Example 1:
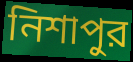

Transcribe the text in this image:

নিশাপুর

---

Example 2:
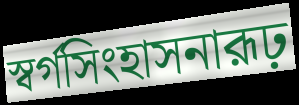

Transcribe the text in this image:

স্বর্গসিংহাসনারূঢ়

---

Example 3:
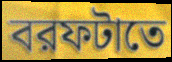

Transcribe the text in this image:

বরফটাতে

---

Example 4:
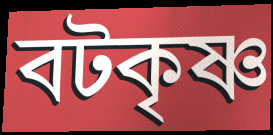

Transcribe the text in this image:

বটকৃষ্ণ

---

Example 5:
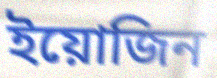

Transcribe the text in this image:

ইয়োজিন